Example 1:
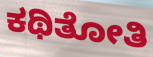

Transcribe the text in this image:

ಕಥಿತೋತಿ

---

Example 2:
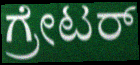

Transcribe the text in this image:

ಗ್ರೇಟರ್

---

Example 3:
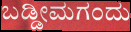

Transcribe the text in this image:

ಬಡ್ಡೀಮಗಂದು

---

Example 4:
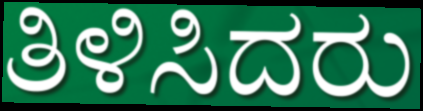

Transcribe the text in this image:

ತಿಳಿಸಿದರು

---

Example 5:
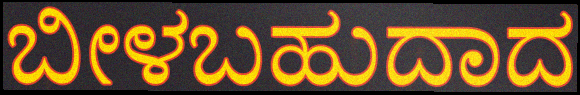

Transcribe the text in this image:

ಬೀಳಬಹುದಾದ